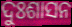
ଦୁଃଶାସନ